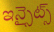
ఇన్సైట్స్